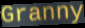
Granny